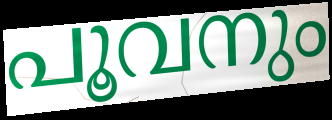
പൂവനും